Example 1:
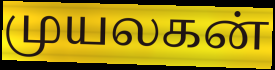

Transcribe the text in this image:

முயலகன்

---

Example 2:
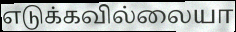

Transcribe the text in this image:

எடுக்கவில்லையா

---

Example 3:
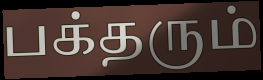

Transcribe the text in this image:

பக்தரும்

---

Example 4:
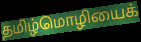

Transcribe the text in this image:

தமிழ்மொழியைக்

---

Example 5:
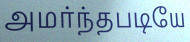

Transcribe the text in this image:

அமர்ந்தபடியே